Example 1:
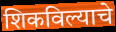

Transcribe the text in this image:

शिकविल्याचे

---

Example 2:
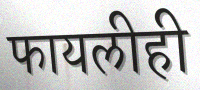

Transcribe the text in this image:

फायलीही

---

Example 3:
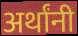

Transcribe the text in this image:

अर्थांनी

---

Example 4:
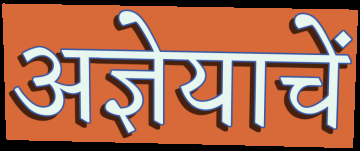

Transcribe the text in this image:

अज्ञेयाचें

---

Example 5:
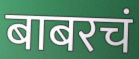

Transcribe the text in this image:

बाबरचं